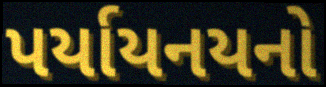
પર્યાયનયનો